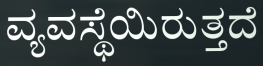
ವ್ಯವಸ್ಥೆಯಿರುತ್ತದೆ